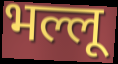
भल्लू